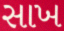
સાખ